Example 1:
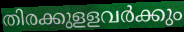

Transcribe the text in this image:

തിരക്കുളളവർക്കും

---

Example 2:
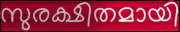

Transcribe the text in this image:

സുരക്ഷിതമായി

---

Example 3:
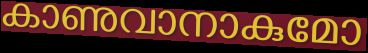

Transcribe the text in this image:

കാണുവാനാകുമോ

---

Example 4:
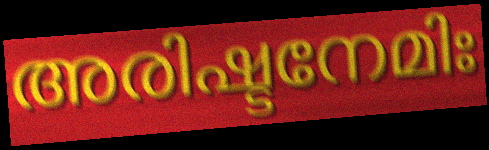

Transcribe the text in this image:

അരിഷ്ടനേമിഃ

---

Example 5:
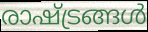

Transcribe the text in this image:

രാഷ്ട്രങ്ങൾ